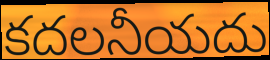
కదలనీయదు